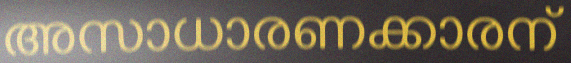
അസാധാരണക്കാരന്